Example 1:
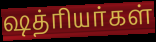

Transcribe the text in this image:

ஷத்ரியர்கள்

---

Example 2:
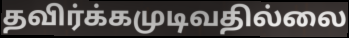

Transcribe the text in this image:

தவிர்க்கமுடிவதில்லை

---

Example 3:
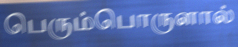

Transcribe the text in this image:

பெரும்பொருளால்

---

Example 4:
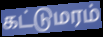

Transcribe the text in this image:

கட்டுமரம்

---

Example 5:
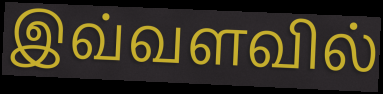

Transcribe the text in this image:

இவ்வளவில்